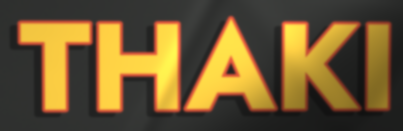
THAKI